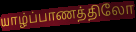
யாழ்ப்பாணத்திலோ